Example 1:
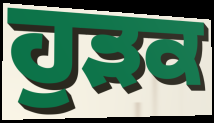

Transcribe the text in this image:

ਹੁੜਕ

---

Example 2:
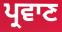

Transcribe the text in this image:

ਪ੍ਰਵਾਣ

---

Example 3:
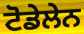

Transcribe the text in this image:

ਟੋਡੇਲੇਨ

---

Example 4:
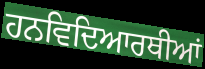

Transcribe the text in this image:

ਹਨਵਿਦਿਆਰਥੀਆਂ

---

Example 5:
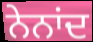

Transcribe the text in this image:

ਨੇਨਾਂਦ